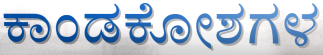
ಕಾಂಡಕೋಶಗಳ